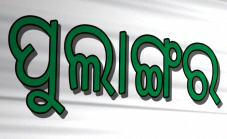
ପୁଲାଙ୍ଗର